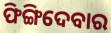
ଫିଙ୍ଗିଦେବାର